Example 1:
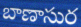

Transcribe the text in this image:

బాణాసుర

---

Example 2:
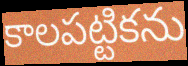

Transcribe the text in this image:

కాలపట్టికను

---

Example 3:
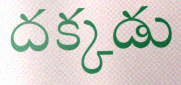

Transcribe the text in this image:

దక్కడు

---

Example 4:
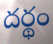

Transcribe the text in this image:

దర్థం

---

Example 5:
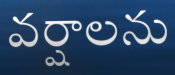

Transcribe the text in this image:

వర్షాలను